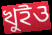
খুইও